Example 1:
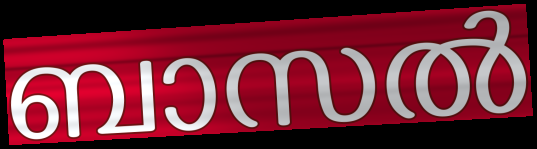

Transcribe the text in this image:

ബാസൽ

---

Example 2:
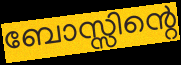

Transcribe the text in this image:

ബോസ്സിന്റെ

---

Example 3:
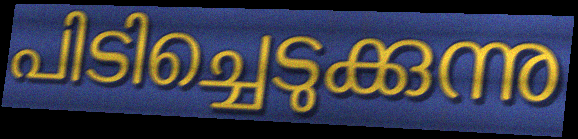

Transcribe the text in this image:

പിടിച്ചെടുക്കുന്നു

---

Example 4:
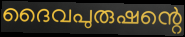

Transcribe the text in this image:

ദൈവപുരുഷന്റെ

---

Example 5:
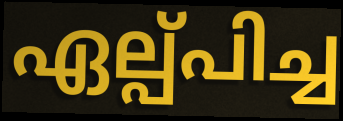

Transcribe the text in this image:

ഏല്പ്പിച്ച